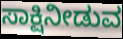
ಸಾಕ್ಷಿನೀಡುವ